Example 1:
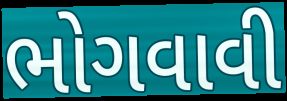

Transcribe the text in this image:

ભોગવાવી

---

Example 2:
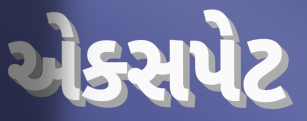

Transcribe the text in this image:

એક્સપેટ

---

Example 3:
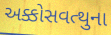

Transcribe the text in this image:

અક્કોસવત્થુના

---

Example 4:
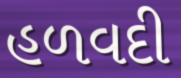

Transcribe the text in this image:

હળવદી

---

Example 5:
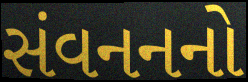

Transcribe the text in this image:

સંવનનનો